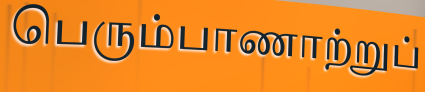
பெரும்பாணாற்றுப்